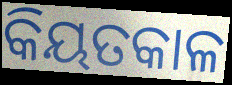
କିୟତକାଳ